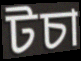
টচা